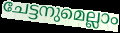
ചേട്ടനുമെല്ലാം